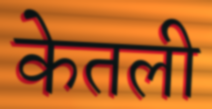
केतली